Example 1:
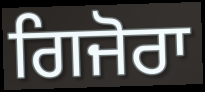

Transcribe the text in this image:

ਗਿਜੋਰਾ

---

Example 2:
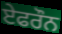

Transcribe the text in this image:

ਏਫਰੌਨ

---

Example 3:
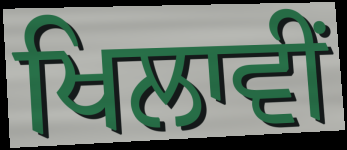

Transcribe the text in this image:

ਖਿਲਾਵੀਂ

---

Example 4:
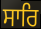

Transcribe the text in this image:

ਸਾਰਿ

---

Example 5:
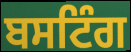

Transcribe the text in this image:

ਬਸਟਿੰਗ